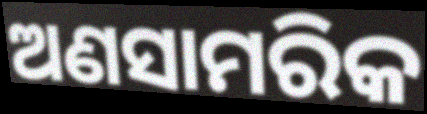
ଅଣସାମରିକ